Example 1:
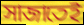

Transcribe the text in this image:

সাজাতেই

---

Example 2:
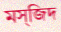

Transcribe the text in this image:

মস্জিদ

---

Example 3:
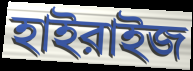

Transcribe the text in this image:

হাইরাইজ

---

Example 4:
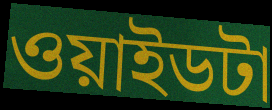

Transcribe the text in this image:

ওয়াইডটা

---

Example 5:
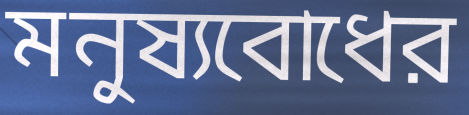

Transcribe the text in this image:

মনুষ্যবোধের